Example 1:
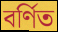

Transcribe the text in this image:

বর্ণিত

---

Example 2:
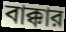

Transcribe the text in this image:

বাক্কার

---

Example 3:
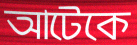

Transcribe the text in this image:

আটেকে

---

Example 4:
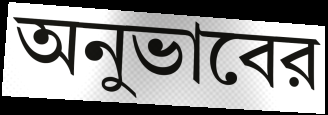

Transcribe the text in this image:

অনুভাবের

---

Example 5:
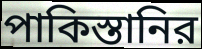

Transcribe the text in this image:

পাকিস্তানির